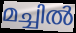
മച്ചിൽ